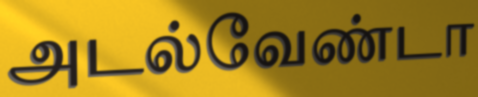
அடல்வேண்டா